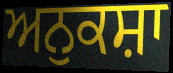
ਅਨੁਕਸ਼ਾ